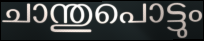
ചാന്തുപൊട്ടും